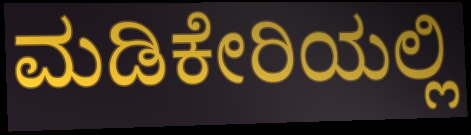
ಮಡಿಕೇರಿಯಲ್ಲಿ